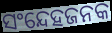
ସଂନ୍ଦେହଜନକ